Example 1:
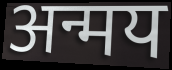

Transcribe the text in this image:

अन्मय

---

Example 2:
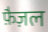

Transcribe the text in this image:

फ़ैज़ल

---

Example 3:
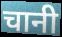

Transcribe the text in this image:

चानी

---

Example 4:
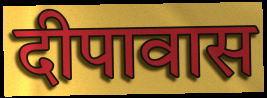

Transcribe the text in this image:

दीपावास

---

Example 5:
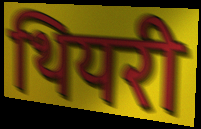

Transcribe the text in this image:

थियरी